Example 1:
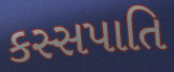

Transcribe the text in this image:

કસ્સપાતિ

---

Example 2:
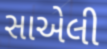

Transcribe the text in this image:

સાએલી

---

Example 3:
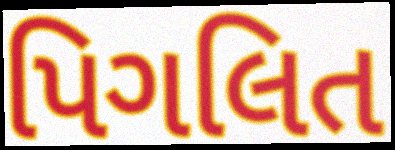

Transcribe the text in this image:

પિગલિત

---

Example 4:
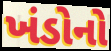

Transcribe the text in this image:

ખંડોનો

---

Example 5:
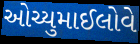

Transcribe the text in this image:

ઓચ્યુમાઈલોવે